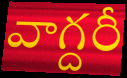
వాగ్దరీ